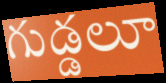
గుడ్డలూ